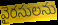
వైరసులను